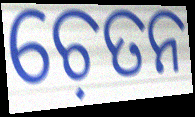
ଚ଼େତନ